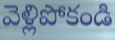
వెళ్లిపోకండి